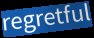
regretful